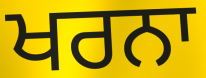
ਖਰਨਾ